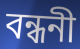
বন্ধনী